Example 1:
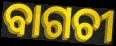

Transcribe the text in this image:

ବାଗଚୀ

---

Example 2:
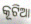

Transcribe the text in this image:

କୂଟିଆ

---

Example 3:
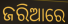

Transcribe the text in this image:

ଜରିଆରେ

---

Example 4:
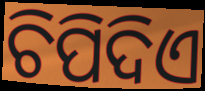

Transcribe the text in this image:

ଚିପିଦିଏ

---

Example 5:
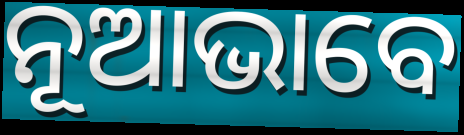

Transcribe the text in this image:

ନୂଆଭାବେ